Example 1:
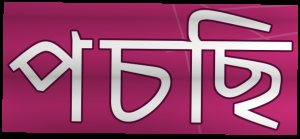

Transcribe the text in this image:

পচছি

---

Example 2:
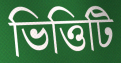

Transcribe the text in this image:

ভিত্তিটি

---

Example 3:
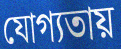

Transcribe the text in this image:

যোগ্যতায়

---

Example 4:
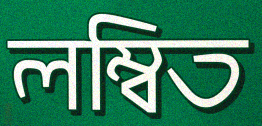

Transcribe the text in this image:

লম্বিত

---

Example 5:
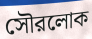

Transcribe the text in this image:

সৌরলোক